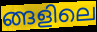
ങ്ങളിലെ